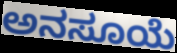
ಅನಸೂಯೆ